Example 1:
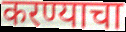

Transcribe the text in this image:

करण्याचा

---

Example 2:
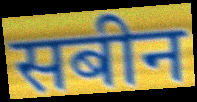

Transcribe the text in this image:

सबीन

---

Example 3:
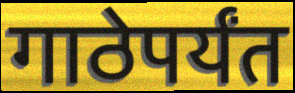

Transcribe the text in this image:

गाठेपर्यंत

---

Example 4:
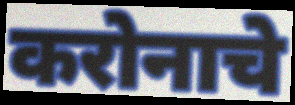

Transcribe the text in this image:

करोनाचे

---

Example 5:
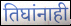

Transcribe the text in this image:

तिघांनाही